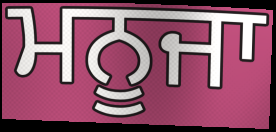
ਮਨੂਜਾ